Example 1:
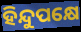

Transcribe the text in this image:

ହିନ୍ଦୁପକ୍ଷେ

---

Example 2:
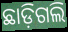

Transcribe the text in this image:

ଛାଡ଼ିଗଲି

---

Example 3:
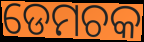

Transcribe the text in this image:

ଡେମଚକ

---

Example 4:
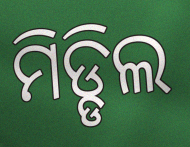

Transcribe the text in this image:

ମିଡ୍ଡିଲ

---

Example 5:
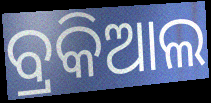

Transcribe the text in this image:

ବ୍ରକିଆଲ